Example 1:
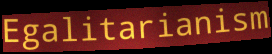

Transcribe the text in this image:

Egalitarianism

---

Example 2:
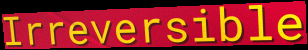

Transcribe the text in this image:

Irreversible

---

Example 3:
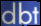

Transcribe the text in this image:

dbt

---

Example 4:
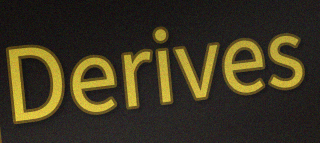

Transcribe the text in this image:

Derives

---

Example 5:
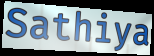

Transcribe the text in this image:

Sathiya